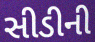
સીડીની